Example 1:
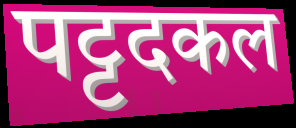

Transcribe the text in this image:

पट्टदकल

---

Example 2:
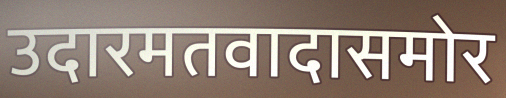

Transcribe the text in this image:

उदारमतवादासमोर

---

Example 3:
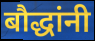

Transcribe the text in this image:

बौद्धांनी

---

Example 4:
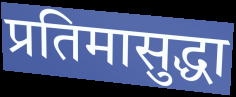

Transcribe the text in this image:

प्रतिमासुद्धा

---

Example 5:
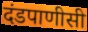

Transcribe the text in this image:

दंडपाणीसी